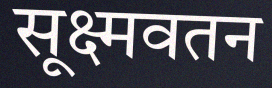
सूक्ष्मवतन